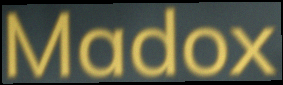
Madox